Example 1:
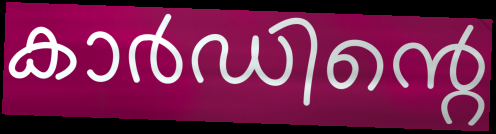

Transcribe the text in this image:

കാർഡിന്റെ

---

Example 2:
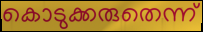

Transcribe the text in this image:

കൊടുക്കരുതെന്ന്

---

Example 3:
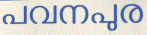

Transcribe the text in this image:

പവനപുര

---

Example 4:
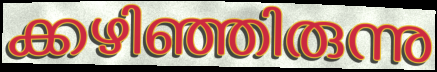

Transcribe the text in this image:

ക്കഴിഞ്ഞിരുന്നു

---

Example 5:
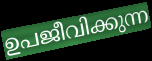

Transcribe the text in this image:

ഉപജീവിക്കുന്ന